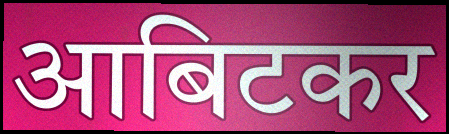
आबिटकर